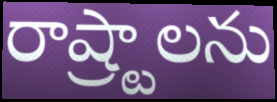
రాష్ర్టాలను